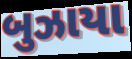
બુઝાયા